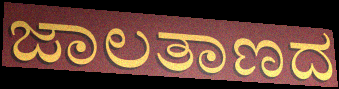
ಜಾಲತಾಣದ